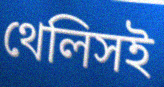
থেলিসই